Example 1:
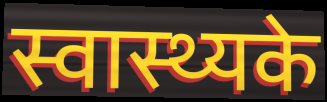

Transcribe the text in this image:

स्वास्थ्यके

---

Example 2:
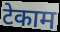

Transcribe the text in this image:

टेकाम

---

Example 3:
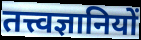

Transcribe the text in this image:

तत्त्वज्ञानियों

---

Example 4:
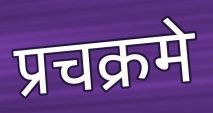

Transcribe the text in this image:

प्रचक्रमे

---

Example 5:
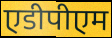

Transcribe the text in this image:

एडीपीएम